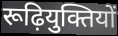
रूढ़ियुक्तियों